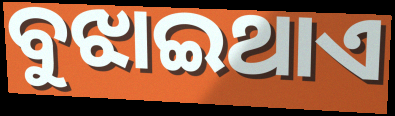
ବୁଝାଇଥାଏ